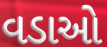
વડાઓ